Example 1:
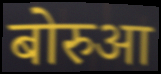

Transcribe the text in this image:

बोरुआ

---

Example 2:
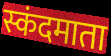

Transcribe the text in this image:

स्‍कंदमाता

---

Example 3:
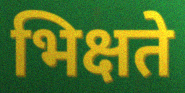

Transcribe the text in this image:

भिक्षते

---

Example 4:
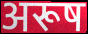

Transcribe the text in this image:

अरूष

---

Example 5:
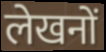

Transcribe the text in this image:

लेखनों